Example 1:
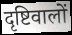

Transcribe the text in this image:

दृष्टिवालों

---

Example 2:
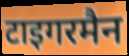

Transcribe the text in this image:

टाइगरमैन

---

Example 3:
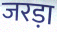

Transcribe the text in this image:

जरड़ा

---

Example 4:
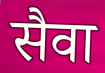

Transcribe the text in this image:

सैवा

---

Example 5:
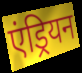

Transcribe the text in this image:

एंड्रियन